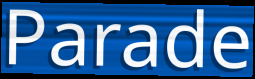
Parade